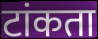
टांकता